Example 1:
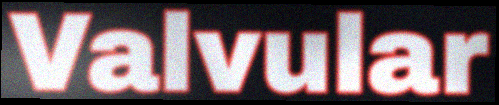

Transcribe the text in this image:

Valvular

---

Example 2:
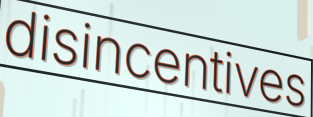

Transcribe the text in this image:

disincentives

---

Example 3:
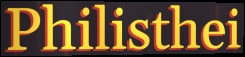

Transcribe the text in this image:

Philisthei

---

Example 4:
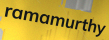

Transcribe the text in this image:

ramamurthy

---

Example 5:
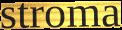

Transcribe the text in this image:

stroma